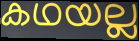
കഥയല്ല